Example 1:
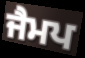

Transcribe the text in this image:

ਜੈਮਪ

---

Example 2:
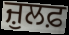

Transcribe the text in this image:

ਜ਼ੁਲਫ਼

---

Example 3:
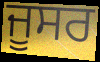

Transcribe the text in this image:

ਜੂਸਰ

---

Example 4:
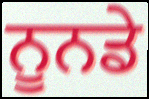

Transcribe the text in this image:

ਨੂਨਡੇ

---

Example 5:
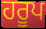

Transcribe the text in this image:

ਹਰੂਪ